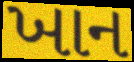
ખાન